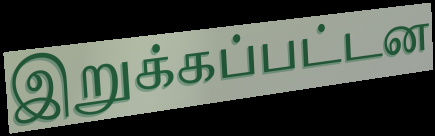
இறுக்கப்பட்டன